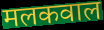
मलकवाल